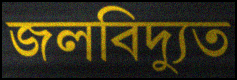
জলবিদ্যুত